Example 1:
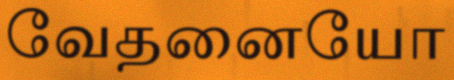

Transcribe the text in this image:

வேதனையோ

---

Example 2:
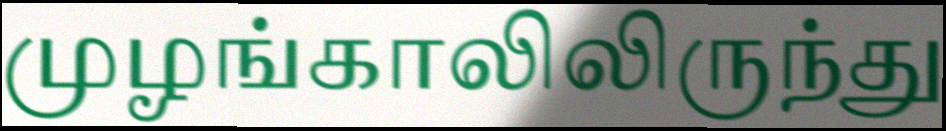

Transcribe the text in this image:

முழங்காலிலிருந்து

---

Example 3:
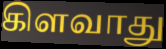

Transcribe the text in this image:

கிளவாது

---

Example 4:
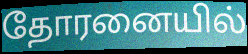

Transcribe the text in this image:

தோரனையில்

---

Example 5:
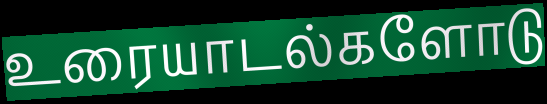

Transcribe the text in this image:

உரையாடல்களோடு